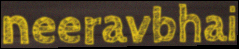
neeravbhai